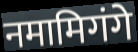
नमामिगंगे